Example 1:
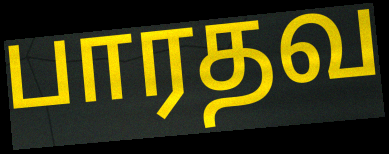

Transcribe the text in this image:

பாரதவ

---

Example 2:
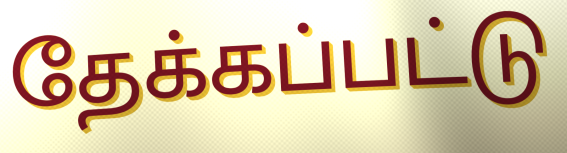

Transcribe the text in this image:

தேக்கப்பட்டு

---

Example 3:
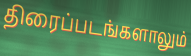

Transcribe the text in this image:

திரைப்படங்களாலும்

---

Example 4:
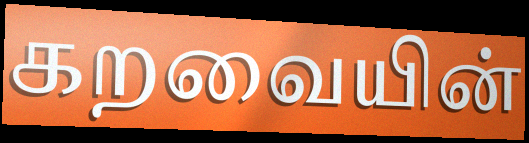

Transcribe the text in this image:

கறவையின்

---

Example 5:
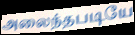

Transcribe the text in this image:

அலைந்தபடியே